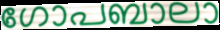
ഗോപബാലാ